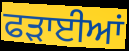
ਫੜਾਈਆਂ